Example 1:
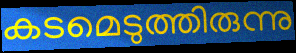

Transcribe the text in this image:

കടമെടുത്തിരുന്നു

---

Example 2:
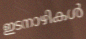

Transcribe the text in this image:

ഇടനാഴികൾ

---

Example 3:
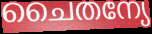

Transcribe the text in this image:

ചൈതന്യേ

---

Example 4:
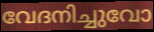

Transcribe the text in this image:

വേദനിച്ചുവോ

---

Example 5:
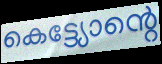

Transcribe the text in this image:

കെട്ട്യോന്റെ